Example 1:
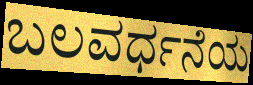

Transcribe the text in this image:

ಬಲವರ್ಧನೆಯ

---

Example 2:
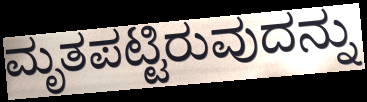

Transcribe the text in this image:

ಮೃತಪಟ್ಟಿರುವುದನ್ನು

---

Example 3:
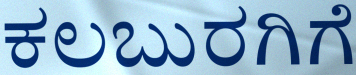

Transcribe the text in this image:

ಕಲಬುರಗಿಗೆ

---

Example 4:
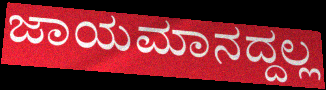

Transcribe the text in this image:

ಜಾಯಮಾನದ್ದಲ್ಲ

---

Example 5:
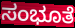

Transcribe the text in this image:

ಸಂಭೂತೆ